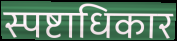
स्पष्टाधिकार